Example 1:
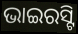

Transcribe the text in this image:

ଭାଇରସ୍ଟି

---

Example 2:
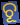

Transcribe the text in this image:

ଚୂ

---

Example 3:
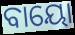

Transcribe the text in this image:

ବାୟୋ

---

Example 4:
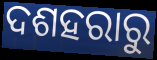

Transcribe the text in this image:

ଦଶହରାରୁ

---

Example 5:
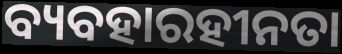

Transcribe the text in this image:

ବ୍ୟବହାରହୀନତା